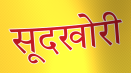
सूदखोरी